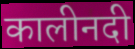
कालीनदी